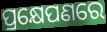
ପ୍ରକ୍ଷେପଣରେ